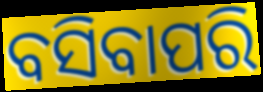
ବସିବାପରି